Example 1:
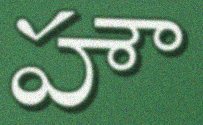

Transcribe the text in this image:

హౌ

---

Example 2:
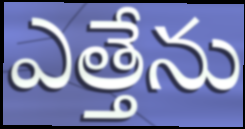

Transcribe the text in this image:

ఎత్తేను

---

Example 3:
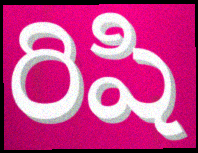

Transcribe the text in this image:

రిషి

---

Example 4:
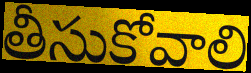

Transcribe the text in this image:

తీసుకోవాలి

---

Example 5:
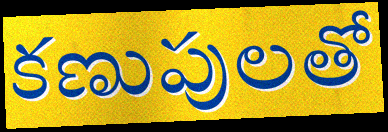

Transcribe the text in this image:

కణుపులతో